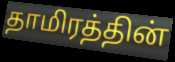
தாமிரத்தின்